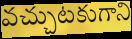
వచ్చుటకుగాని